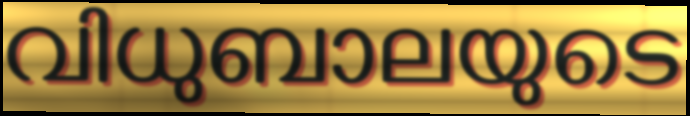
വിധുബാലയുടെ